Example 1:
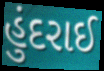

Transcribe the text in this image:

હુંદરાઈ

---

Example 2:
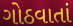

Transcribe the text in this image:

ગોઠવાતાં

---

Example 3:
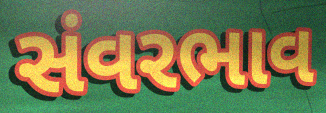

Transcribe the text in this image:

સંવરભાવ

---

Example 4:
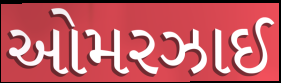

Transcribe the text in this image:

ઓમરઝાઈ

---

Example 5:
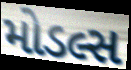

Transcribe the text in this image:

મોડલ્સ